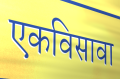
एकविसावा